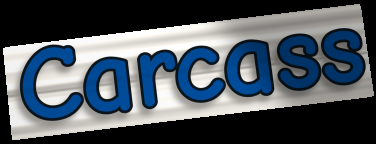
Carcass